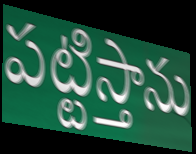
పట్టిస్తాను